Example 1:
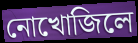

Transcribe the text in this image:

নোখোজিলে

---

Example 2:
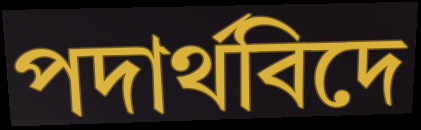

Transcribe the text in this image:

পদাৰ্থবিদে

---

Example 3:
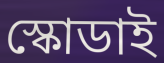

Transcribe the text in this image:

স্কোডাই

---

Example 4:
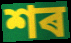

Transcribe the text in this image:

শৰ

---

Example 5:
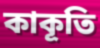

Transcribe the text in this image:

কাকূতি